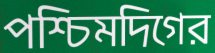
পশ্চিমদিগের